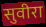
सुवीरा